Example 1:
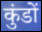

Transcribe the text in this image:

कुंडों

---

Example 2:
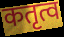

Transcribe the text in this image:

कतृत्व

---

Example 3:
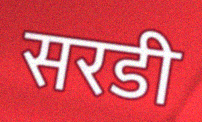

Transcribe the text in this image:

सरडी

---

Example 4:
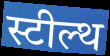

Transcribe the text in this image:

स्टील्थ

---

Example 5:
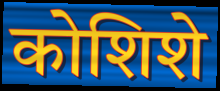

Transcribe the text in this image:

कोशिशे